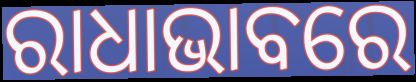
ରାଧାଭାବରେ